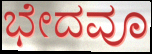
ಭೇದವೂ